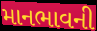
માનભાવની